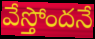
వేస్తోందనే